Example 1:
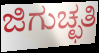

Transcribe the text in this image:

ಜಿಗುಚ್ಛತಿ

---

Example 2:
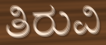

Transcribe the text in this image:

ತಿರುವಿ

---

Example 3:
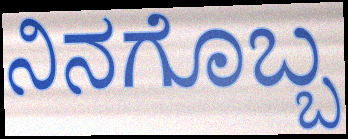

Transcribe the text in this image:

ನಿನಗೊಬ್ಬ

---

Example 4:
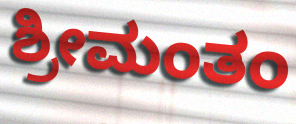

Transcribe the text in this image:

ಶ್ರೀಮಂತಂ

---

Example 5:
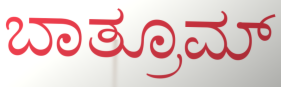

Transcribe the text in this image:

ಬಾತ್ರೂಮ್